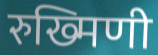
रुख्मिणी